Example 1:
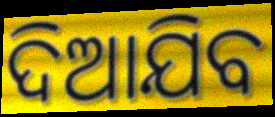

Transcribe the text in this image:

ଦିଆଯିବ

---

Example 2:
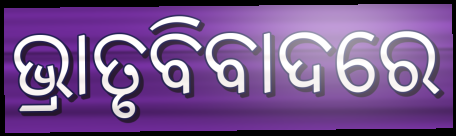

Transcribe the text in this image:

ଭ୍ରାତୃବିବାଦରେ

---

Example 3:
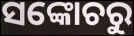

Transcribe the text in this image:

ସଙ୍କୋଚରୁ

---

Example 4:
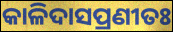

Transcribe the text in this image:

କାଳିଦାସପ୍ରଣୀତଃ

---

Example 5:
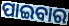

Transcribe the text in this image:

ପାଇବାର